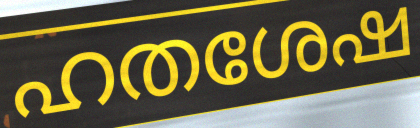
ഹതശേഷ